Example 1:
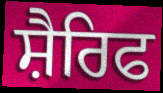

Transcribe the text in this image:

ਸ਼ੈਰਿਫ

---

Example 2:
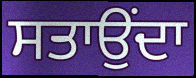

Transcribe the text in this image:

ਸਤਾਉਂਦਾ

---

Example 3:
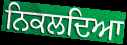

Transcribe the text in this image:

ਨਿਕਲਦਿਆ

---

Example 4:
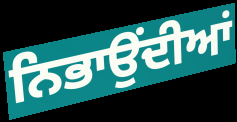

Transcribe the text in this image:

ਨਿਭਾਉਂਦੀਆਂ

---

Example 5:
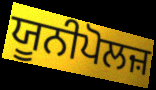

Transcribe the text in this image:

ਯੂਨੀਪੋਲਜ਼